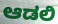
ಆಡಲಿ